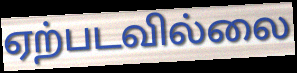
ஏற்படவில்லை